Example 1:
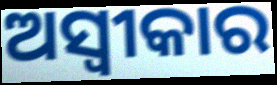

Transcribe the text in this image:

ଅସ୍ବୀକାର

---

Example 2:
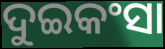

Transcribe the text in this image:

ଦୁଇକଂସା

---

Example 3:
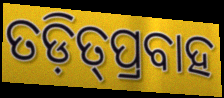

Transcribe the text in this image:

ତଡ଼ିତ୍‌ପ୍ରବାହ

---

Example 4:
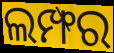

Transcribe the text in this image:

ଲମ୍ଫର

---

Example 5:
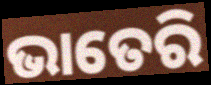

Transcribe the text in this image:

ଭାତେରି